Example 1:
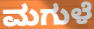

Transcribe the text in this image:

ಮಗುಳೆ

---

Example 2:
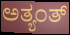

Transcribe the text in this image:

ಅತ್ಯಂತ್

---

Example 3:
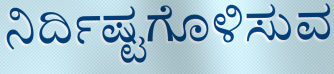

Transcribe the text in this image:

ನಿರ್ದಿಷ್ಟಗೊಳಿಸುವ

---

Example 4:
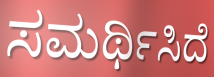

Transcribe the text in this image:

ಸಮರ್ಥಿಸಿದೆ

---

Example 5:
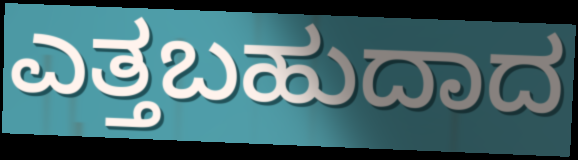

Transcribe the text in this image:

ಎತ್ತಬಹುದಾದ